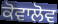
ਕੋਵਾਲੋਵ